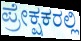
ಪ್ರೇಕ್ಷಕರಲ್ಲಿ